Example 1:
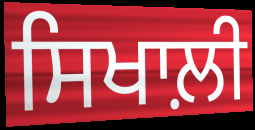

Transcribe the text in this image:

ਸਿਖਾਲ਼ੀ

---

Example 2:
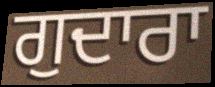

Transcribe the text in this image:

ਗੁਦਾਰਾ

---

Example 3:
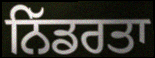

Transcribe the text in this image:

ਨਿੱਡਰਤਾ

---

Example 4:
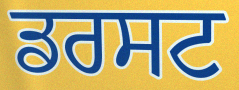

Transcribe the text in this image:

ਡਰਸਟ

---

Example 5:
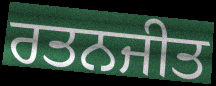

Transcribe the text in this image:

ਰਤਨਜੀਤ